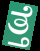
ತ್ತೆ